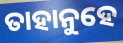
ତାହାନୁହେ